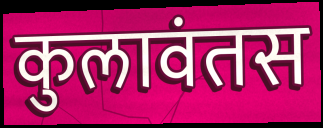
कुलावंतस